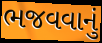
ભજવવાનું